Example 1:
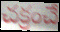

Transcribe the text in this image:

చక్రంచే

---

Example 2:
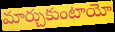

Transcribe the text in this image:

మార్చుకుంటాయో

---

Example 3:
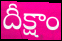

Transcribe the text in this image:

దీక్షాం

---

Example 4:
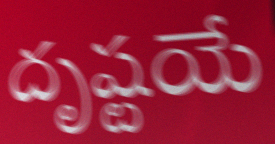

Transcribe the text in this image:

దృష్టయే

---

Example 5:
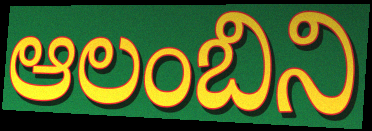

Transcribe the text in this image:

ఆలంబిని